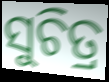
ସୁଚିତ୍ର